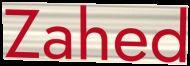
Zahed